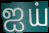
ஐய்